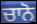
ਚਾਨੋ